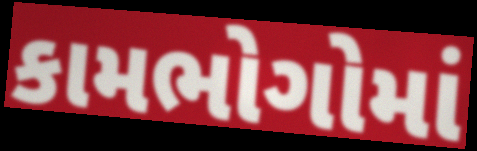
કામભોગોમાં